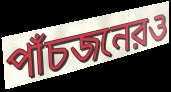
পাঁচজনেরও